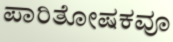
ಪಾರಿತೋಷಕವೂ